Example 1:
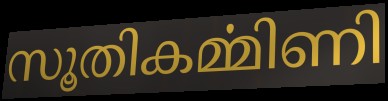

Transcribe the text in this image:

സൂതികൎമ്മിണി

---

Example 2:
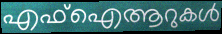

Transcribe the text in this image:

എഫ്ഐആറുകൾ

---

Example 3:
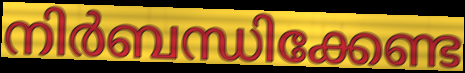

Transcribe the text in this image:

നിർബന്ധിക്കേണ്ട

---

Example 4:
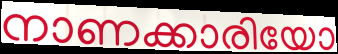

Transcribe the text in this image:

നാണക്കാരിയോ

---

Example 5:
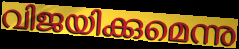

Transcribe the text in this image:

വിജയിക്കുമെന്നു